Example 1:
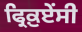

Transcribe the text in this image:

ਫ੍ਰਿਕ਼ੁਏਂਸੀ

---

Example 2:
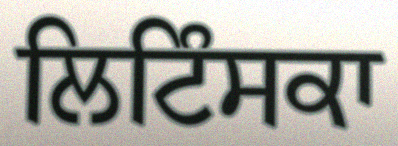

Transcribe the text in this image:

ਲਿਟਿੰਸਕਾ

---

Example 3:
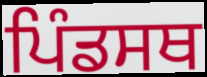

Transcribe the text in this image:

ਪਿੰਡਸਥ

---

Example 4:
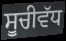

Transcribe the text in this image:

ਸੂਚੀਵੱਧ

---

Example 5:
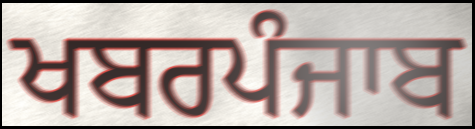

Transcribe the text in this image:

ਖਬਰਪੰਜਾਬ